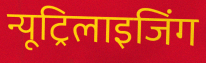
न्यूट्रिलाइजिंग